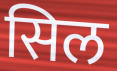
सिल